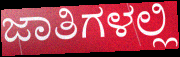
ಜಾತಿಗಳಲ್ಲಿ